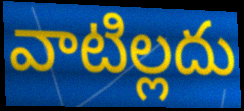
వాటిల్లదు